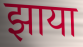
झाया